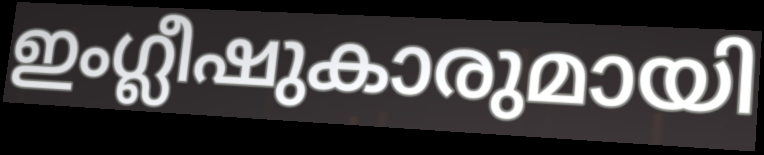
ഇംഗ്ലീഷുകാരുമായി